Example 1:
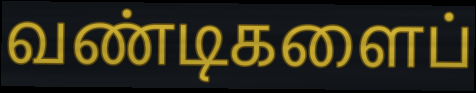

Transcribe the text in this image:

வண்டிகளைப்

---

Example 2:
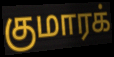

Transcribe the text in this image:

குமாரக்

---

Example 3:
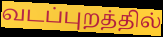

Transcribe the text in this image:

வடப்புறத்தில்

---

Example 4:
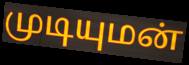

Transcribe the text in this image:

முடியுமன்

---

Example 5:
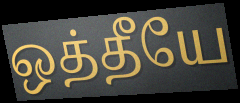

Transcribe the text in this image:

ஒத்தீயே